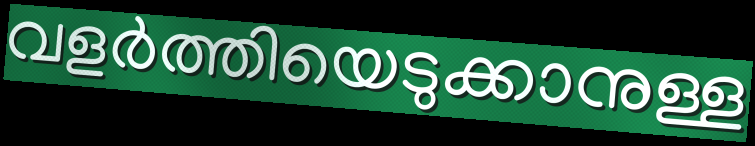
വളർത്തിയെടുക്കാനുള്ള